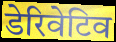
डेरिवेटिव